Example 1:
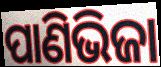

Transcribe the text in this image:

ପାଣିଭିଜା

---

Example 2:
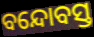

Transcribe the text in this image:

ବନ୍ଦୋବସ୍ତ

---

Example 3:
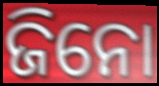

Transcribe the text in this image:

ଜିନୋ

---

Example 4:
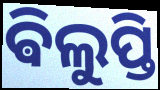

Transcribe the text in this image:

ଵିଲୁପ୍ତି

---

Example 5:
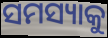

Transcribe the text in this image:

ସମସ୍ୟାକୁ